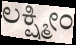
ಲಕ್ಷ್ಮೀಂ